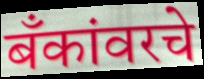
बँकांवरचे